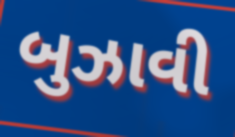
બુઝાવી